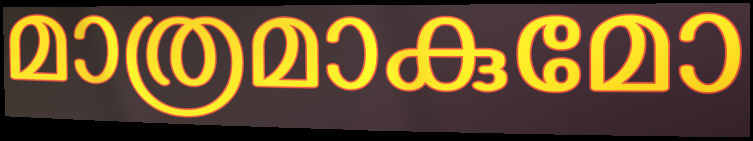
മാത്രമാകുമോ